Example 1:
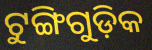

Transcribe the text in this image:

ଟୁଙ୍ଗିଗୁଡ଼ିକ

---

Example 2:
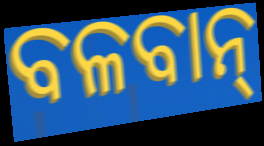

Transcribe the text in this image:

ବଳବାନ୍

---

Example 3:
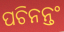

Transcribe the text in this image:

ପଚିନନ୍ତଂ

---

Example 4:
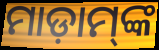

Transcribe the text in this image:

ମାଡ଼ାମ୍‌ଙ୍କ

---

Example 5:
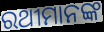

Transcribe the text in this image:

ରଥୀମାନଙ୍କ